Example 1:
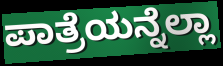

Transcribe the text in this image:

ಪಾತ್ರೆಯನ್ನೆಲ್ಲಾ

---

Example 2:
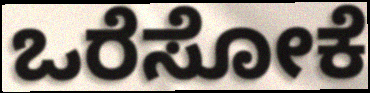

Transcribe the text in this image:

ಒರೆಸೋಕೆ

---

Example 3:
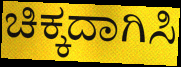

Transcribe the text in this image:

ಚಿಕ್ಕದಾಗಿಸಿ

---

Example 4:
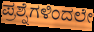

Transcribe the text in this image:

ಪ್ರಶ್ನೆಗಳಿಂದಲೇ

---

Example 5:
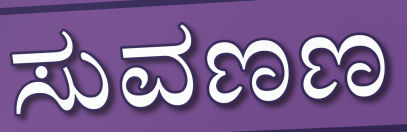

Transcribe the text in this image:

ಸುವಣಣ